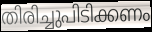
തിരിച്ചുപിടിക്കണം